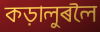
কড়ালুৰলৈ